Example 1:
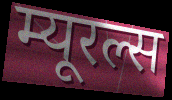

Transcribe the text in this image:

म्यूरल्स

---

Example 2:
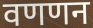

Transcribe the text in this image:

वणणन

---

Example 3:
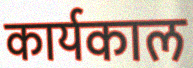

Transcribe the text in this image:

कार्यकाल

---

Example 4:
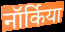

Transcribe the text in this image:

नॉर्किया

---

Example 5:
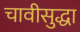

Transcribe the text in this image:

चावीसुद्धा